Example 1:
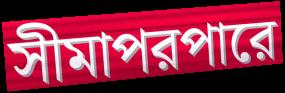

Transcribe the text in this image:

সীমাপরপারে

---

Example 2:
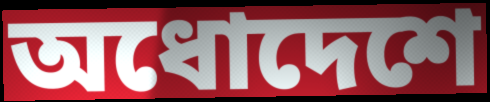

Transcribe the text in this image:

অধোদেশে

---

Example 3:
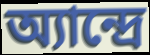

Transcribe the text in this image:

অ্যান্দ্রে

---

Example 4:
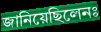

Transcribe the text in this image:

জানিয়েছিলেনঃ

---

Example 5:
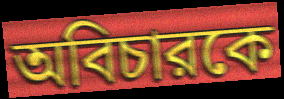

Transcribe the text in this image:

অবিচারকে